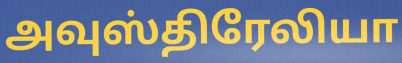
அவுஸ்திரேலியா